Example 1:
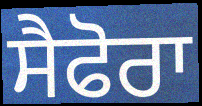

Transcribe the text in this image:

ਸੈਫੋਰਾ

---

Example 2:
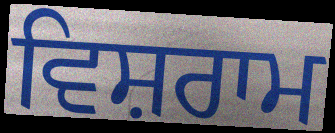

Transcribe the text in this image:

ਵਿਸ਼ਰਾਮ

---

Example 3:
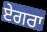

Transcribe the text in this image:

ਏਗਰਾ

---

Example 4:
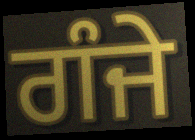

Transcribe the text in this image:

ਗੰਜੇ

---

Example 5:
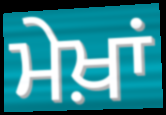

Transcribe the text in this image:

ਮੇਖ਼ਾਂ